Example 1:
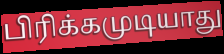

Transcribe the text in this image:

பிரிக்கமுடியாது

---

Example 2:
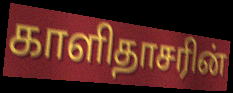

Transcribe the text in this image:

காளிதாசரின்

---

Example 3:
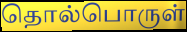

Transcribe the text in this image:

தொல்பொருள்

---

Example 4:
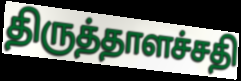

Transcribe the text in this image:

திருத்தாளச்சதி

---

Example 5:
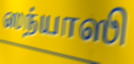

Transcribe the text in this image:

ஸந்யாஸி